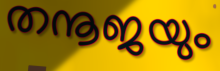
തനൂജയും